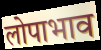
लोपाभाव